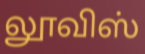
லூவிஸ்